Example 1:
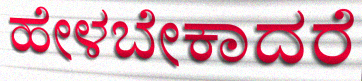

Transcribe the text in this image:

ಹೇಳಬೇಕಾದರೆ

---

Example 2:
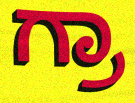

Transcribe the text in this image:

ಗ್ರಾ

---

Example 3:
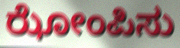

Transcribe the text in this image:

ಝೋಂಪಿಸು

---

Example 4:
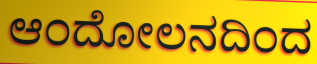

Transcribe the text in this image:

ಆಂದೋಲನದಿಂದ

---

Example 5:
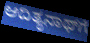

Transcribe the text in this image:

ಆದಿತ್ಯನಾಥ್‌ಗೆ